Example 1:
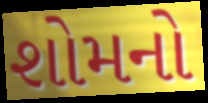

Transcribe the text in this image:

શોમનો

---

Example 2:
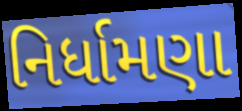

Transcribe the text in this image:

નિર્ધામણા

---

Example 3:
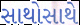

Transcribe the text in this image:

સાથોસાથે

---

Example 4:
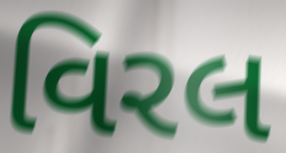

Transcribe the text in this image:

વિરલ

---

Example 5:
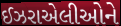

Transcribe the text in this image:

ઈઝરાએલીઓને